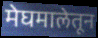
मेघमालेतून